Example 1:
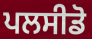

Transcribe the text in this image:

ਪਲਸੀਡੋ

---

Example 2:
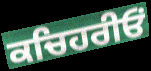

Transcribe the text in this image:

ਕਚਿਹਰੀਓਂ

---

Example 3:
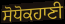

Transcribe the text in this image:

ਸੋਧੋਕਹਾਣੀ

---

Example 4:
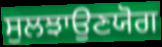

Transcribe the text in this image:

ਸੁਲਝਾਉਣਯੋਗ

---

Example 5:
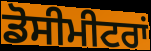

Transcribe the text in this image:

ਡੋਸੀਮੀਟਰਾਂ